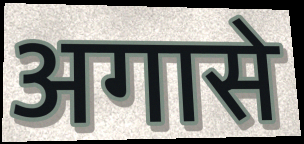
अगासे